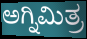
ಅಗ್ನಿಮಿತ್ರ